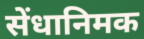
सेंधानिमक